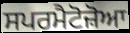
ਸਪਰਮੈਟੋਜ਼ੋਆ